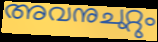
അവനുചുറ്റും